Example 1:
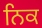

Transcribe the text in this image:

ਨਿਕ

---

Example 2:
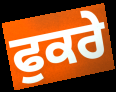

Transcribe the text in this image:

ਫੁਕਰੇ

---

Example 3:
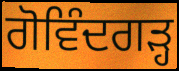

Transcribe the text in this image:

ਗੋਵਿੰਦਗੜ੍ਹ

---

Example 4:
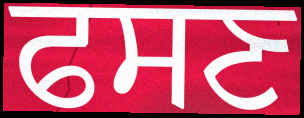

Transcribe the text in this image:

ਫਸਣ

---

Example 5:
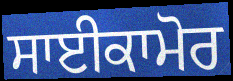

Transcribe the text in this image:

ਸਾਈਕਾਮੋਰ